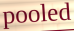
pooled